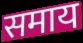
समाय